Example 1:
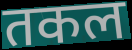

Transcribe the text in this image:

तकल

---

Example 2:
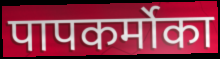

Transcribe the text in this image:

पापकर्मोका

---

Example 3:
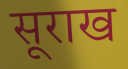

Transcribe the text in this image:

सूराख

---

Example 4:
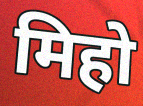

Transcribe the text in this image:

मिहो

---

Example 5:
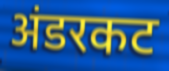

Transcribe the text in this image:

अंडरकट